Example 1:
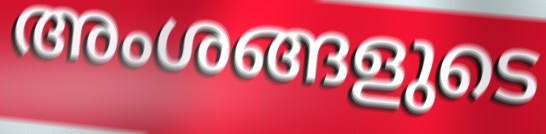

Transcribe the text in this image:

അംശങ്ങളുടെ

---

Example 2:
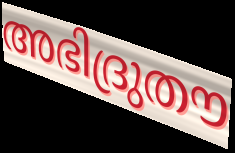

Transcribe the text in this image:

അഭിദ്രുതൗ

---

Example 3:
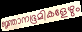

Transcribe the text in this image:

ജ്ഞാനഭൂമികളേഴും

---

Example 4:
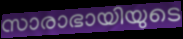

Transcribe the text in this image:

സാരാഭായിയുടെ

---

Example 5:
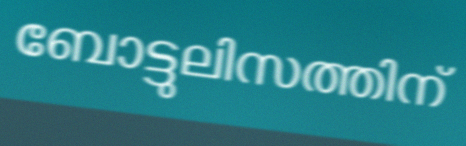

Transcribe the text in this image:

ബോട്ടുലിസത്തിന്